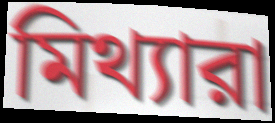
মিথ্যারা